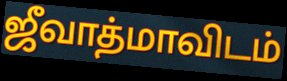
ஜீவாத்மாவிடம்